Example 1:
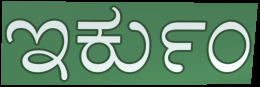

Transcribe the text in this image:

ಇರ್ಕುಂ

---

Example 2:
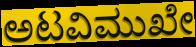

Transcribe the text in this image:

ಅಟವಿಮುಖೇ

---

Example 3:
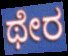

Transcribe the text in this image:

ಥೇರ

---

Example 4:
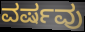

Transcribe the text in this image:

ವರ್ಷವು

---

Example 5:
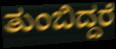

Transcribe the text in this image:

ತುಂಬಿದ್ದರೆ